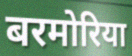
बरमोरिया